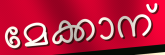
മേക്കാന്